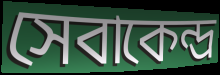
সেবাকেন্দ্র